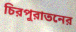
চিরপুরাতনের